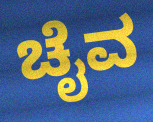
ಚೈವ